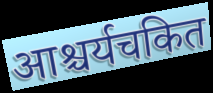
आश्चर्यचकित